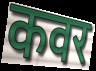
कवर